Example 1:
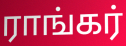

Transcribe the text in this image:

ராங்கர்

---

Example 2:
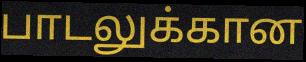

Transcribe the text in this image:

பாடலுக்கான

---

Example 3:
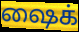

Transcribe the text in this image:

ஷைக்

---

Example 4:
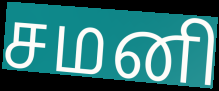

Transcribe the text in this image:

சமனி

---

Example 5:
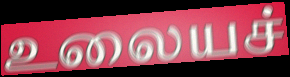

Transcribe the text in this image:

உலையச்